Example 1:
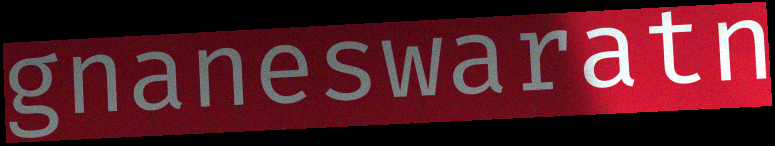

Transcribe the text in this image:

gnaneswaratn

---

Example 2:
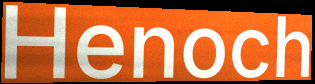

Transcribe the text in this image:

Henoch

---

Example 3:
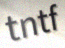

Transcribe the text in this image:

tntf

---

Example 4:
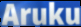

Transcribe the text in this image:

Aruku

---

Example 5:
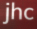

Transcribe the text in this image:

jhc